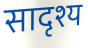
सादृश्य